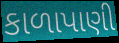
કાળાપાણી